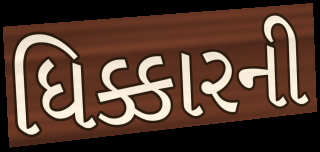
ધિક્કારની